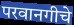
परवानगीचे